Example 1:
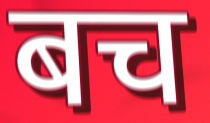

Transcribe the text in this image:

बच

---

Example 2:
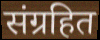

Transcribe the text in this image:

संग्रहित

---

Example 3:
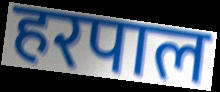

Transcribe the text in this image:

हरपाल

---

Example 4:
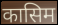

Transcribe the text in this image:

कासिम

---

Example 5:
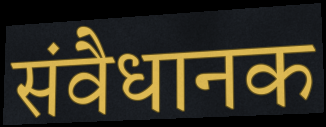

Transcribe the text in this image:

संवैधानक